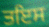
ਤਇਸ